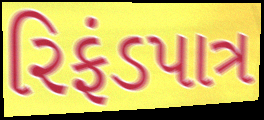
રિફંડપાત્ર